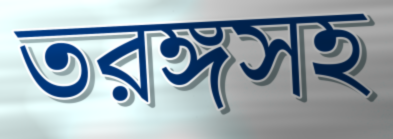
তরঙ্গসহ